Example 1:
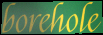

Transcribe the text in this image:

borehole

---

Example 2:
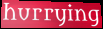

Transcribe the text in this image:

hurrying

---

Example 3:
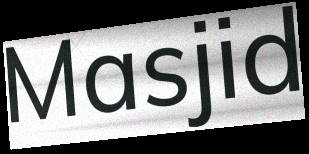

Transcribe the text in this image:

Masjid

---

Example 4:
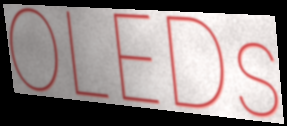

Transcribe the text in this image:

OLEDs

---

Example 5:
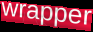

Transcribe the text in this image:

wrapper